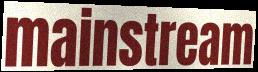
mainstream